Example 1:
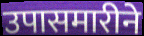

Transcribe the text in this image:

उपासमारीने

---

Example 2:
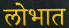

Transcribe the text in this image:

लोभात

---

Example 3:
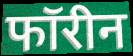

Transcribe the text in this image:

फॉरीन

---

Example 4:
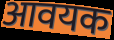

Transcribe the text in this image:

आवयक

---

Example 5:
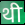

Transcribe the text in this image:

थी